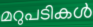
മറുപടികൾ